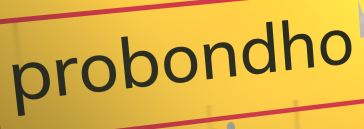
probondho